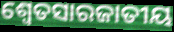
ଶ୍ଵେତସାରଜାତୀୟ